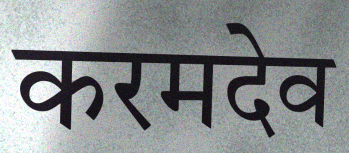
करमदेव